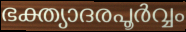
ഭക്ത്യാദരപൂർവ്വം